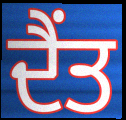
ਦੈਂਤ